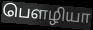
பௌழியா